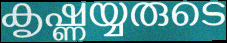
കൃഷ്ണയ്യരുടെ